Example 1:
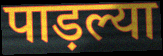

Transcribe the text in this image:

पाड़ल्या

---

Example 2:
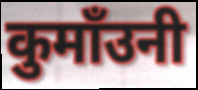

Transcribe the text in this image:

कुमाँउनी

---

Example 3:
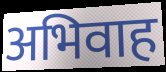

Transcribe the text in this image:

अभिवाह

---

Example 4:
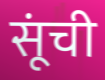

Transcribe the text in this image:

सूंची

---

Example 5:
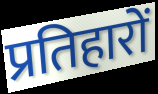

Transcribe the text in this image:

प्रतिहारों